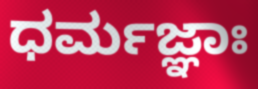
ಧರ್ಮಜ್ಞಾಃ